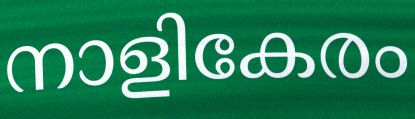
നാളികേരം